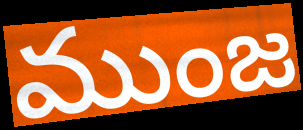
ముంజ